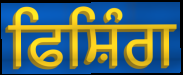
ਫਿਸ਼ਿੰਗ